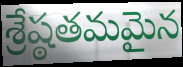
శ్రేష్ఠతమమైన